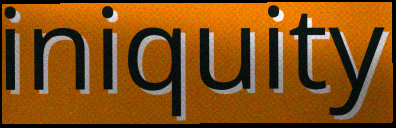
iniquity